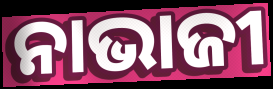
ନାଭାଜୀ